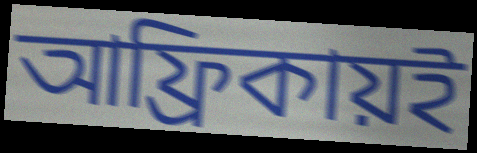
আফ্রিকায়ই